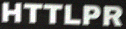
HTTLPR